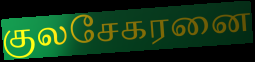
குலசேகரனை